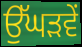
ਉੱਘੜਵੇਂ